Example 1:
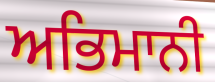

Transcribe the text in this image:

ਅਭਿਮਾਨੀ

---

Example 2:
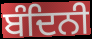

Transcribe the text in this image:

ਬੰਦਿਨੀ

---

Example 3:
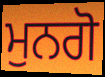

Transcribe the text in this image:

ਮੁਨਗੋ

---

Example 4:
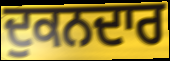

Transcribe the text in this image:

ਦੁਕਨਦਾਰ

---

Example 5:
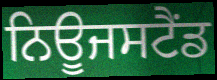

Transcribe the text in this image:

ਨਿਊਜਸਟੈਂਡ